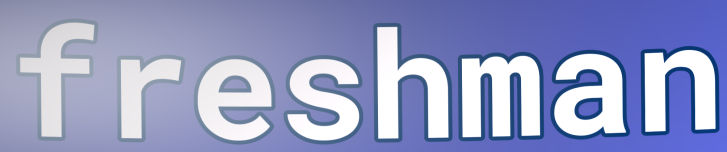
freshman